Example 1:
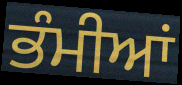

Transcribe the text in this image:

ਭੰਮੀਆਂ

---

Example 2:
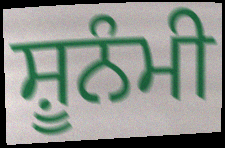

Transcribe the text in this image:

ਸ਼ੂਨੰਮੀ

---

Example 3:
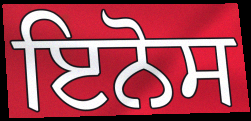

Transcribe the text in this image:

ਇਨੋਸ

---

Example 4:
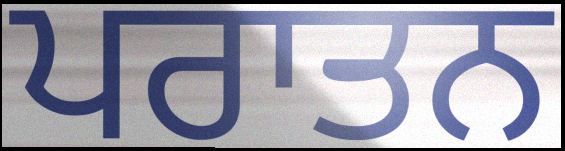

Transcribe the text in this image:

ਪਰਾਤਨ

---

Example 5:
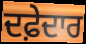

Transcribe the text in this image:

ਦਫ਼ੇਦਾਰ